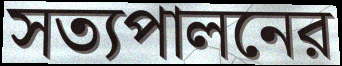
সত্যপালনের